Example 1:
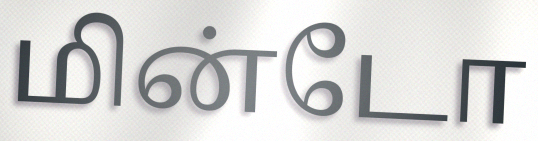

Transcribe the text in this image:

மின்டோ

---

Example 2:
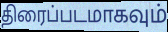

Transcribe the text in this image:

திரைப்படமாகவும்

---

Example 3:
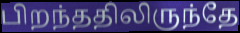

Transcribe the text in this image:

பிறந்ததிலிருந்தே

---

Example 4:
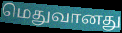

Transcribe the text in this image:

மெதுவானது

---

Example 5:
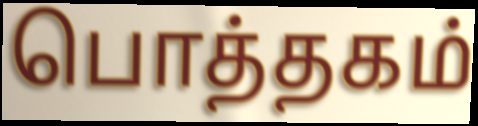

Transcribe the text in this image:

பொத்தகம்